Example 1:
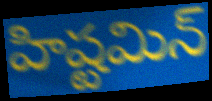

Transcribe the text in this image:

హిష్టమిన్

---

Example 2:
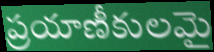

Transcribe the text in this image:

ప్రయాణీకులమై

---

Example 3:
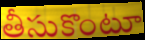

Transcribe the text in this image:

తీసుకొంటూ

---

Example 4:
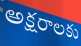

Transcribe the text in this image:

అక్షరాలకు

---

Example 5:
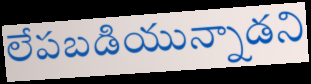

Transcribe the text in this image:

లేపబడియున్నాడని